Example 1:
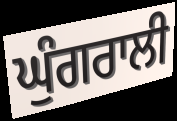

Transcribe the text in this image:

ਘੁੰਗਰਾਲੀ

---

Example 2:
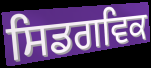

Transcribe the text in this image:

ਸਿਡਗਵਿਕ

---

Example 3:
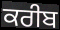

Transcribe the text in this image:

ਕਰੀਬ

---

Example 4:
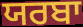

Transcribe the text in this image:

ਯਰਬਾ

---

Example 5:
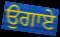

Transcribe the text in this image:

ਉਗਾਏ